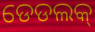
ଡେଡଲକ୍